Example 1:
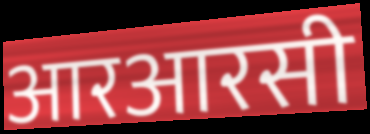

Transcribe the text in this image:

आरआरसी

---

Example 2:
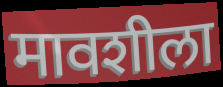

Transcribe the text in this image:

मावशीला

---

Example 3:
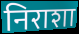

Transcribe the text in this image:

निराशा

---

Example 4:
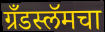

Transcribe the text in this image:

ग्रँडस्लॅमचा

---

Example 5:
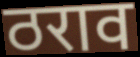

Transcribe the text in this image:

ठराव